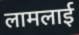
लामलाई